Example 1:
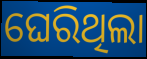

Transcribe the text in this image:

ଘେରିଥିଲା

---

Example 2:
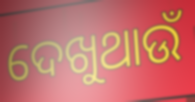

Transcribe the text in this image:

ଦେଖୁଥାଉଁ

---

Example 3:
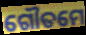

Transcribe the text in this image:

ଗୌତମେ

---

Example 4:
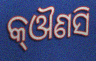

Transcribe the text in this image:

କ୍ଔଣସି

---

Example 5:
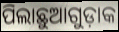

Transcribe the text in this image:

ପିଲାଛୁଆଗୁଡ଼ାକ